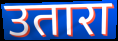
उतारा